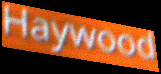
Haywood